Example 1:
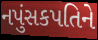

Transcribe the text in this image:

નપુંસકપતિને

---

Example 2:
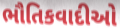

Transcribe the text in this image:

ભૌતિકવાદીઓ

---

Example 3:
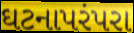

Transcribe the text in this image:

ઘટનાપરંપરા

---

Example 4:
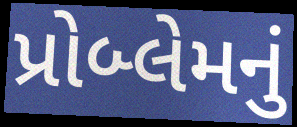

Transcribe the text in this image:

પ્રોબ્લેમનું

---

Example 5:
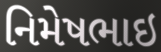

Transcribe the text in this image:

નિમેષભાઇ